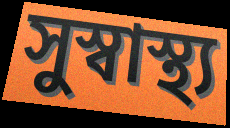
সুস্বাস্থ্য